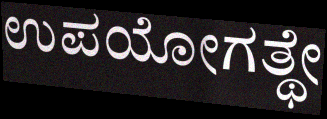
ಉಪಯೋಗತ್ಥೇ